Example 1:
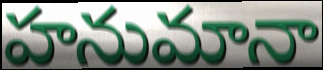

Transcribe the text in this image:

హనుమానా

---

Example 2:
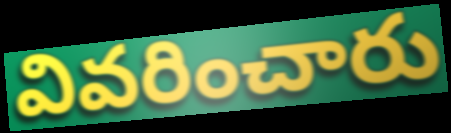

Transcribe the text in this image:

వివరించారు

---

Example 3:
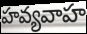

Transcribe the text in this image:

హవ్యవాహ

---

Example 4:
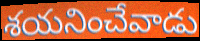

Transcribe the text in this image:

శయనించేవాడు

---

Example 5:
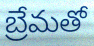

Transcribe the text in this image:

బ్రేమతో